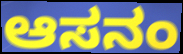
ಆಸನಂ